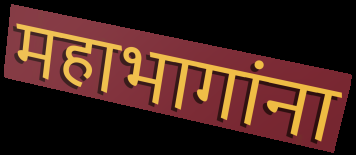
महाभागांना